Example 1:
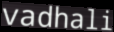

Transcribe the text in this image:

vadhali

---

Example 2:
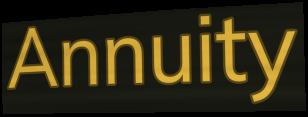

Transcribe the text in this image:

Annuity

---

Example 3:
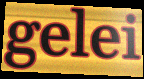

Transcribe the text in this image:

gelei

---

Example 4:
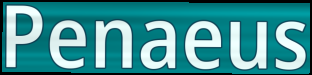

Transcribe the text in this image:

Penaeus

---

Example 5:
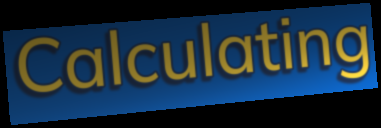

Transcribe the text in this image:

Calculating